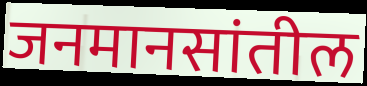
जनमानसांतील